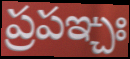
ప్రపఞ్చః